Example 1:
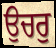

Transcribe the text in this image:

ਉਚਰੁ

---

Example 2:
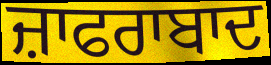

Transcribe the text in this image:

ਜ਼ਾਫਰਾਬਾਦ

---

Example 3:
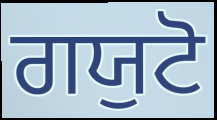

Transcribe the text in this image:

ਗਯੁਟੋ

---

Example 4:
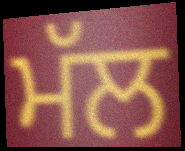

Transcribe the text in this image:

ਮੱਲ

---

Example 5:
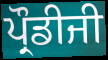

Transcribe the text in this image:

ਪ੍ਰੌਡੀਜੀ